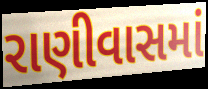
રાણીવાસમાં